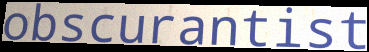
obscurantist